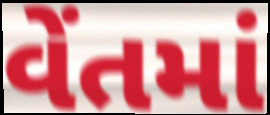
વેંતમાં